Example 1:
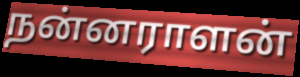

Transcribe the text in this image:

நன்னராளன்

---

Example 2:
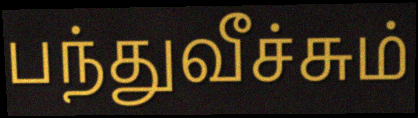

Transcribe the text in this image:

பந்துவீச்சும்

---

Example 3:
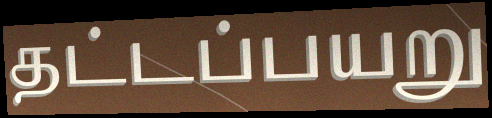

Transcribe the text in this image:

தட்டப்பயறு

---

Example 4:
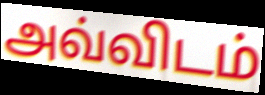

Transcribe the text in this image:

அவ்விடம்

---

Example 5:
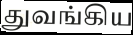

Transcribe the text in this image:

துவங்கிய